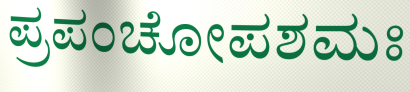
ಪ್ರಪಂಚೋಪಶಮಃ